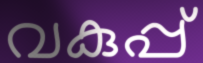
വകുപ്പ്